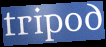
tripod